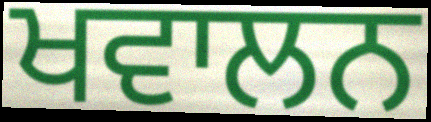
ਖਵਾਲਨ